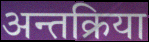
अन्तक्रिया